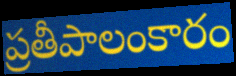
ప్రతీపాలంకారం